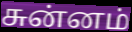
சுன்னம்